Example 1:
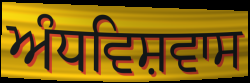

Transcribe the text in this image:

ਅੰਧਵਿਸ਼ਵਾਸ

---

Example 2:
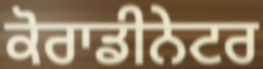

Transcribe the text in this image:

ਕੋਰਾਡੀਨੇਟਰ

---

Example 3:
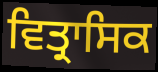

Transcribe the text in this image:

ਵਿਤ੍ਰਾਸਿਕ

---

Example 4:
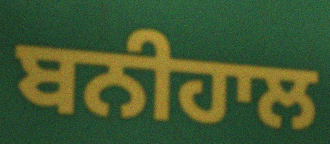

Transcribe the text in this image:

ਬਨੀਹਾਲ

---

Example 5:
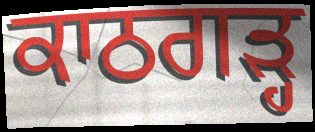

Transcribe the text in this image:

ਕਾਠਗਡ਼੍ਹ